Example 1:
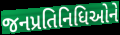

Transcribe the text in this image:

જનપ્રતિનિધિઓને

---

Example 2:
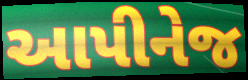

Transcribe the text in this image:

આપીનેજ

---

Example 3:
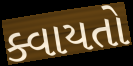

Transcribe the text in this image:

ક્વાયતો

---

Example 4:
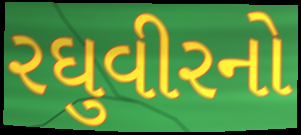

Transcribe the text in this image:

રઘુવીરનો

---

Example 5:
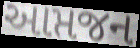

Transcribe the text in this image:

આપ્તજન